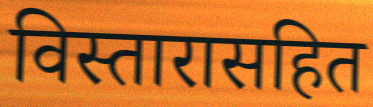
विस्तारासहित